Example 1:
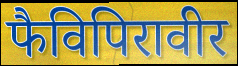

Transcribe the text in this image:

फैविपिरावीर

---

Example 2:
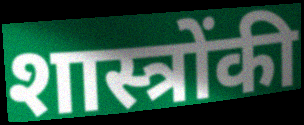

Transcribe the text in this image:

शास्त्रोंकी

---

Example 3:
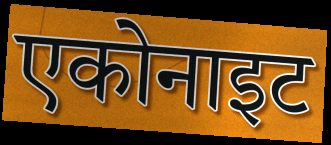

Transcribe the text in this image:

एकोनाइट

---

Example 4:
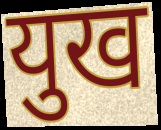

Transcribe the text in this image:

युख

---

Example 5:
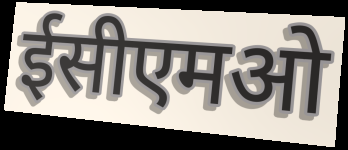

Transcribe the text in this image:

ईसीएमओ